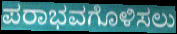
ಪರಾಭವಗೊಳಿಸಲು